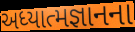
અધ્યાત્મજ્ઞાનના